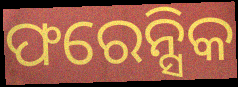
ଫରେନ୍ସିକ